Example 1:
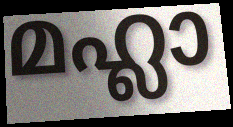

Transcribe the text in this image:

മഹ്ലാ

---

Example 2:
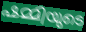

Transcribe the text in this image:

ഷമ്മിയുടെ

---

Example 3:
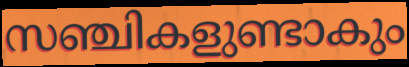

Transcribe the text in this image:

സഞ്ചികളുണ്ടാകും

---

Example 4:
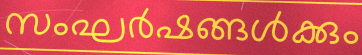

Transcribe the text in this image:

സംഘർഷങ്ങൾക്കും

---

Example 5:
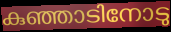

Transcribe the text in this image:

കുഞ്ഞാടിനോടു